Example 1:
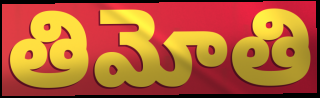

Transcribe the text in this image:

తిమోతి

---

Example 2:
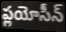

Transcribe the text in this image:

ప్లయోసీన్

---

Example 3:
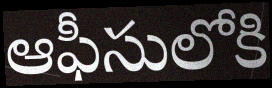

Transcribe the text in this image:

ఆఫీసులోకి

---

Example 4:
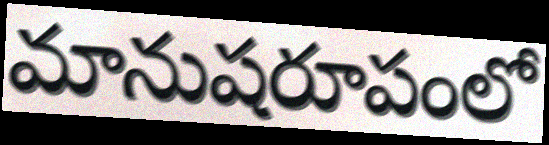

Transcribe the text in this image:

మానుషరూపంలో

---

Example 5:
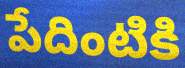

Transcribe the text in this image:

పేదింటికి